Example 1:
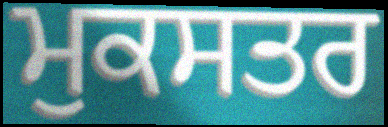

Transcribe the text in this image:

ਮੁਕਸਤਰ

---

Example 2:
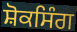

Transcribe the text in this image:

ਸ਼ੋਕਸਿੰਗ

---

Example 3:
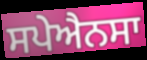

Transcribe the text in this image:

ਸਪੇਐਨਸਾ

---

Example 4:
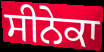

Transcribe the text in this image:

ਸੀਨੇਕਾ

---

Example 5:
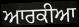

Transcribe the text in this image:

ਆਰਕੀਆ